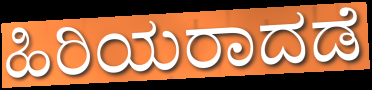
ಹಿರಿಯರಾದಡೆ